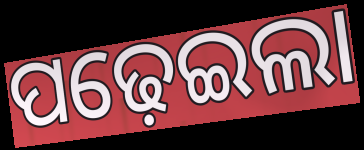
ପଢ଼େଇଲା